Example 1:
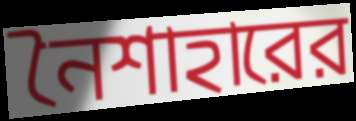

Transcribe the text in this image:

নৈশাহারের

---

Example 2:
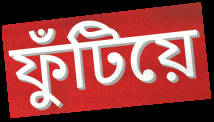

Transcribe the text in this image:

ফুঁটিয়ে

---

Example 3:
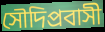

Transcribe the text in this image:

সৌদিপ্রবাসী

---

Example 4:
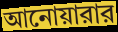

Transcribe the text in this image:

আনোয়ারার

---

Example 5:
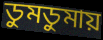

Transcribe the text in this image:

ডুমডুমায়